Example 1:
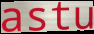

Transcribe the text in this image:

astu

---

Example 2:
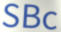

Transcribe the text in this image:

SBc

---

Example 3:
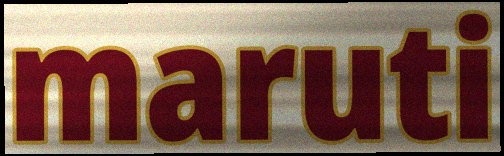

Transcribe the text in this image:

maruti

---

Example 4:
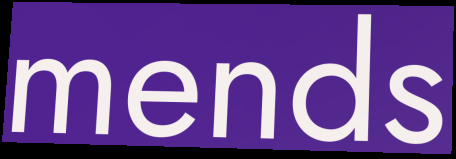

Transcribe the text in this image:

mends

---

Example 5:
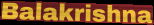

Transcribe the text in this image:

Balakrishna